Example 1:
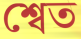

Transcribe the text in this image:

শ্বেত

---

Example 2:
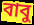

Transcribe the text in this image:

বাবু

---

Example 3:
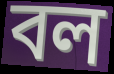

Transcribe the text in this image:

বল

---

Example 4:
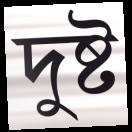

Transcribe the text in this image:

দুষ্ট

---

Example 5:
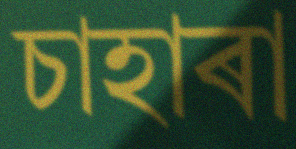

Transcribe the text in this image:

চাহাৰা